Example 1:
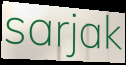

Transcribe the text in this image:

sarjak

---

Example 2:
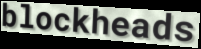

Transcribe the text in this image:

blockheads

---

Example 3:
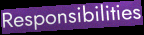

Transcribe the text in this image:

Responsibilities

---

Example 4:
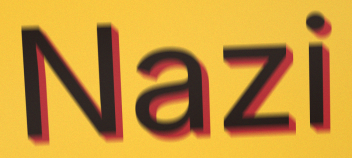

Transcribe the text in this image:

Nazi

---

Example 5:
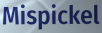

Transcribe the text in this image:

Mispickel